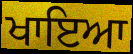
ਖਾਇਆ